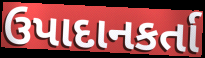
ઉપાદાનકર્તા